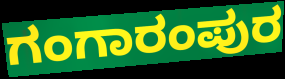
ಗಂಗಾರಂಪುರ